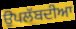
ਉਪਲੱਬਦੀਆ